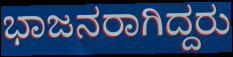
ಭಾಜನರಾಗಿದ್ದರು